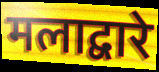
मलाद्वारे